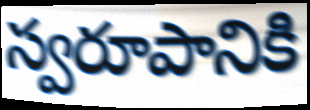
స్వరూపానికి